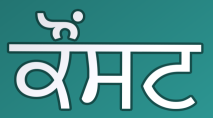
ਕੌਂਸਟ